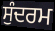
ਸੁੰਦਰਮ